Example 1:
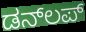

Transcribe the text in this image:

ಡನ್‌ಲಪ್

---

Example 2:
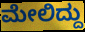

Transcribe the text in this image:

ಮೇಲಿದ್ದು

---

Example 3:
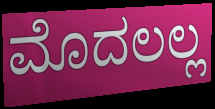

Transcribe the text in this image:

ಮೊದಲಲ್ಲ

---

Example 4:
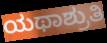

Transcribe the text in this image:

ಯಥಾಶ್ರುತಿ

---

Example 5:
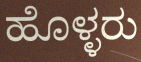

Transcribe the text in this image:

ಹೊಳ್ಳರು